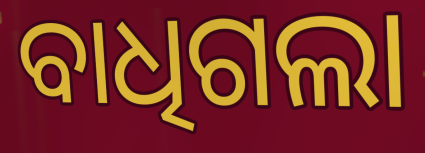
ବାଧିଗଲା